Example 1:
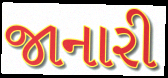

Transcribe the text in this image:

જાનારી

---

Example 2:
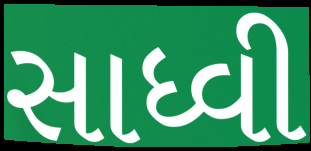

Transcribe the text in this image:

સાધ્વી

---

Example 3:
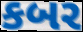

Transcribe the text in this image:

કબર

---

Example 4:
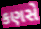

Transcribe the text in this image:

કણસે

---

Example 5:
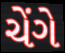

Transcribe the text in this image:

ચેંગે